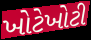
ખોટેખોટી